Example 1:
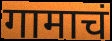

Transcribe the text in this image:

गामाचं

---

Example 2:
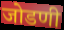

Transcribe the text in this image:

जोडणी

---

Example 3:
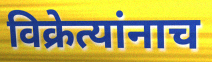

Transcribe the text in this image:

विक्रेत्यांनाच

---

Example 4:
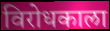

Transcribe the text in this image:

विरोधकाला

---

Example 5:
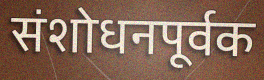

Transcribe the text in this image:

संशोधनपूर्वक